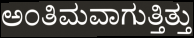
ಅಂತಿಮವಾಗುತ್ತಿತ್ತು